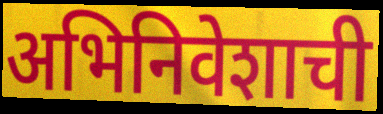
अभिनिवेशाची